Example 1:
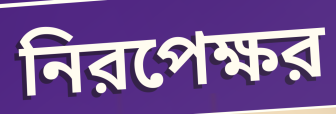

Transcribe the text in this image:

নিরপেক্ষর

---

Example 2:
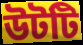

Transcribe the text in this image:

উটটি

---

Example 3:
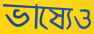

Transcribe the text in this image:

ভাষ্যেও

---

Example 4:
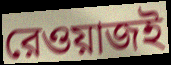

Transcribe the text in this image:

রেওয়াজই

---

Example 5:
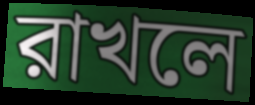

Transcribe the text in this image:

রাখলে